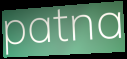
patna